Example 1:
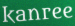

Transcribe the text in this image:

kanree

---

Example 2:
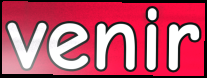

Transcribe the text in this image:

venir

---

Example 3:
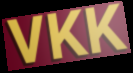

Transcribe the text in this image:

VKK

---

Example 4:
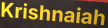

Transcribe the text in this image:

Krishnaiah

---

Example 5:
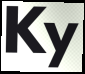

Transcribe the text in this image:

Ky